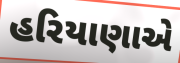
હરિયાણાએ